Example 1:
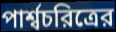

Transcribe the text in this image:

পার্শ্বচরিত্রের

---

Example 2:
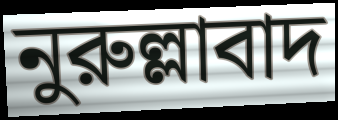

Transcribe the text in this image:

নুরুল্লাবাদ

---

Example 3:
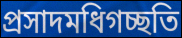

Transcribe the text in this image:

প্রসাদমধিগচ্ছতি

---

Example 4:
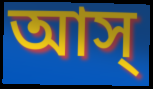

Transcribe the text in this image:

আস্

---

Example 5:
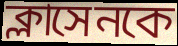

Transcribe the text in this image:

ক্লাসেনকে